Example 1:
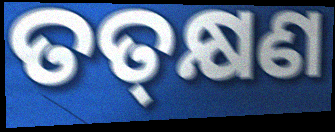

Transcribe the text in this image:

ତତ୍‌କ୍ଷଣ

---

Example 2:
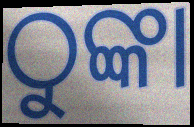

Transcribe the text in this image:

ଠୁଙ୍କା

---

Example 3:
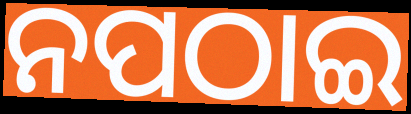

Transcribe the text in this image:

ନପଠାଇ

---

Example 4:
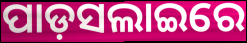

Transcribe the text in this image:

ପାଡ଼ସଲାଇରେ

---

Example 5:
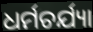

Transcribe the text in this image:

ଧର୍ମଚର୍ଯ୍ୟା